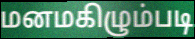
மனமகிழும்படி